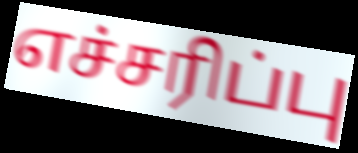
எச்சரிப்பு